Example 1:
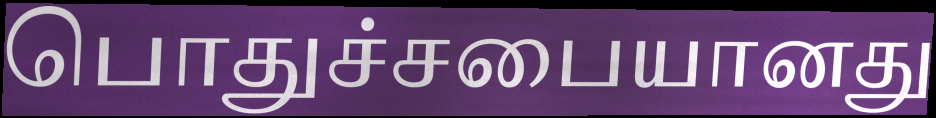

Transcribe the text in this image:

பொதுச்சபையானது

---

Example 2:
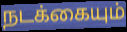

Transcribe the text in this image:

நடக்கையும்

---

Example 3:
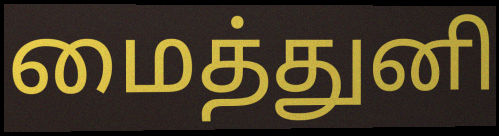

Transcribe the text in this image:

மைத்துனி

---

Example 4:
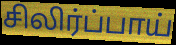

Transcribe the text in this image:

சிலிர்ப்பாய்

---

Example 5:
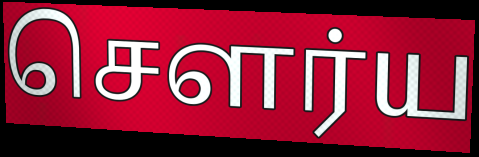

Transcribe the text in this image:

சௌர்ய